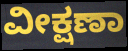
ವೀಕ್ಷಣಾ